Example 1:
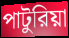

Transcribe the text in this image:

পাটুরিয়া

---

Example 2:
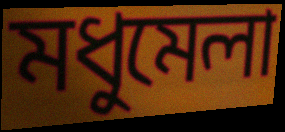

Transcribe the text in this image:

মধুমেলা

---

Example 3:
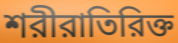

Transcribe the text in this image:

শরীরাতিরিক্ত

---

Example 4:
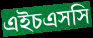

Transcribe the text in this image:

এইচএসসি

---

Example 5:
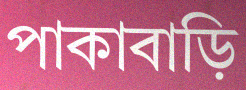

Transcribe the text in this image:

পাকাবাড়ি